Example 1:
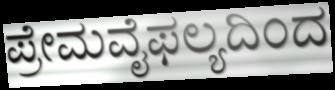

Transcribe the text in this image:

ಪ್ರೇಮವೈಫಲ್ಯದಿಂದ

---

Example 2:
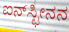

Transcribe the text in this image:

ಐನ್‌ಸ್ಟೀನನ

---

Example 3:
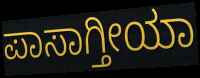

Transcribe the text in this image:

ಪಾಸಾಗ್ತೀಯಾ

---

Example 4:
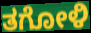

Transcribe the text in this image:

ತಗೋಳಿ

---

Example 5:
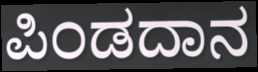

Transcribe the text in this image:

ಪಿಂಡದಾನ